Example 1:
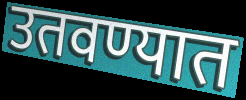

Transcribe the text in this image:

उतवण्यात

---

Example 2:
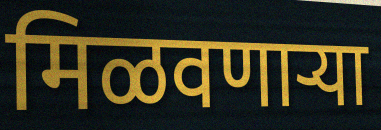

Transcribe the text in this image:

मिळवणाऱ्या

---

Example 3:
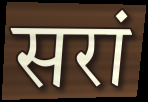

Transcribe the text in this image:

सरां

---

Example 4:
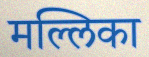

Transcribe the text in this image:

मल्लिका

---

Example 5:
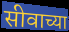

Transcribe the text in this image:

सीवाच्या